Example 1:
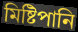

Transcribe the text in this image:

মিষ্টিপানি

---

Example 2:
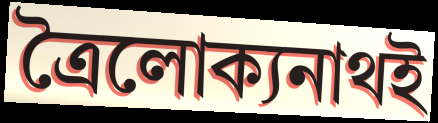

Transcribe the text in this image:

ত্রৈলোক্যনাথই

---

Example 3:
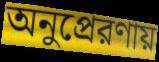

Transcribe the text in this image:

অনুপ্রেরণায়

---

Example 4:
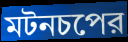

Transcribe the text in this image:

মটনচপের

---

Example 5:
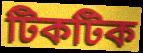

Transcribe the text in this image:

টিকটিক